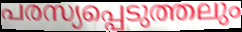
പരസ്യപ്പെടുത്തലും